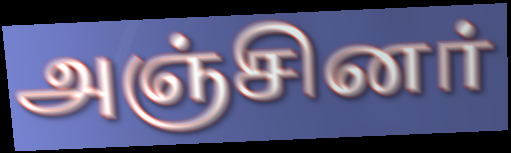
அஞ்சினர்